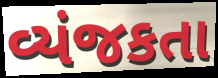
વ્યંજકતા